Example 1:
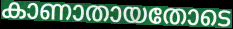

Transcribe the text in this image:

കാണാതായതോടെ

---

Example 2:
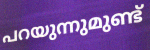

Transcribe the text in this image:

പറയുന്നുമുണ്ട്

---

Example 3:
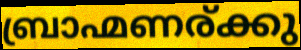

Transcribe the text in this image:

ബ്രാഹ്മണര്ക്കു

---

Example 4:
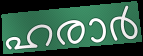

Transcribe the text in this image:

ഹരാർ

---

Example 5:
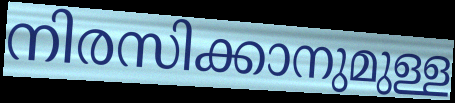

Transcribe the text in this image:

നിരസിക്കാനുമുള്ള